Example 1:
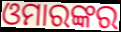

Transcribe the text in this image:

ଓମାରଙ୍କର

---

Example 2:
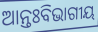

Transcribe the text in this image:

ଆନ୍ତଃବିଭାଗୀୟ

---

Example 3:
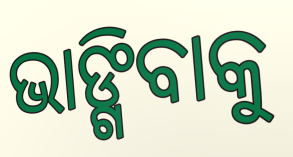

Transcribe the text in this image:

ଭାଙ୍ଗିବାକୁ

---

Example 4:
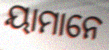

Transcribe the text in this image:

ୟାମାନେ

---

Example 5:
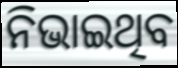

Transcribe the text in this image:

ନିଭାଇଥିବ